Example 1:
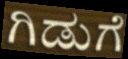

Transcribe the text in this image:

ಗಿಡುಗೆ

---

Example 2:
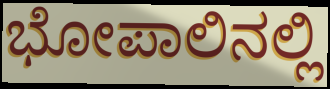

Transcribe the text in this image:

ಭೋಪಾಲಿನಲ್ಲಿ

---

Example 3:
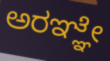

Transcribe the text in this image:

ಅರಞ್ಞೇ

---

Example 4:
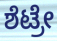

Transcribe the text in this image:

ಶೆಟ್ರೇ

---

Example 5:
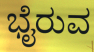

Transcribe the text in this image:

ಭೈರುವ